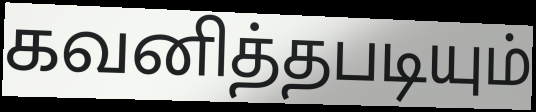
கவனித்தபடியும்